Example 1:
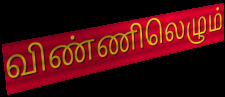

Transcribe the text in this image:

விண்ணிலெழும்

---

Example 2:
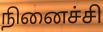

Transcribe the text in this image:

நினைச்சி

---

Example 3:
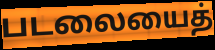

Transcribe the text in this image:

படலையைத்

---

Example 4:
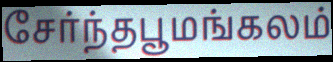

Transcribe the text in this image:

சேர்ந்தபூமங்கலம்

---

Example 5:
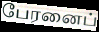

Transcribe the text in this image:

பேரனைப்